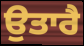
ਉਤਾਰੈ